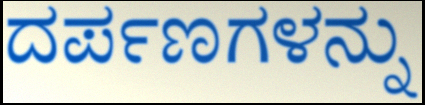
ದರ್ಪಣಗಳನ್ನು